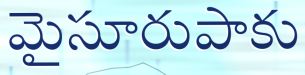
మైసూరుపాకు